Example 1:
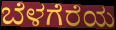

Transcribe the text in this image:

ಬೆಳಗೆರೆಯ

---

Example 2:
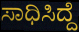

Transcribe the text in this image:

ಸಾಧಿಸಿದ್ದೆ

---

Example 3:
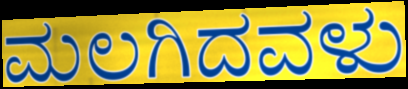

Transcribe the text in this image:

ಮಲಗಿದವಳು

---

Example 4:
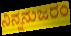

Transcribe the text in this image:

ನಿನ್ನನುಜರಂ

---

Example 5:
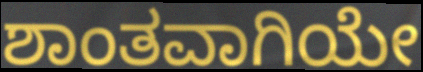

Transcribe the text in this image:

ಶಾಂತವಾಗಿಯೇ